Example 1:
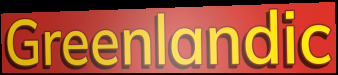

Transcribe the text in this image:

Greenlandic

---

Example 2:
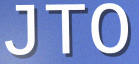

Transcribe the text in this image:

JTO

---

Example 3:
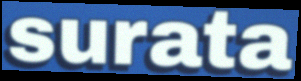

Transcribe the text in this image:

surata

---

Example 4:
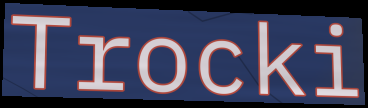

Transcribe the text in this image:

Trocki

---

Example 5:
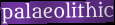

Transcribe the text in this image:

palaeolithic